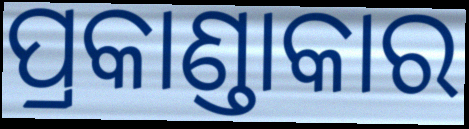
ପ୍ରକାଣ୍ଡାକାର